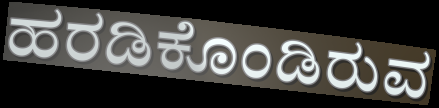
ಹರಡಿಕೊಂಡಿರುವ